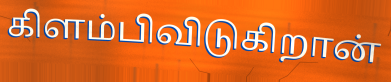
கிளம்பிவிடுகிறான்